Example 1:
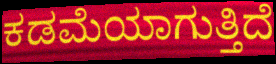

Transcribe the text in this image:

ಕಡಮೆಯಾಗುತ್ತಿದೆ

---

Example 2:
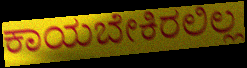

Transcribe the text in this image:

ಕಾಯಬೇಕಿರಲಿಲ್ಲ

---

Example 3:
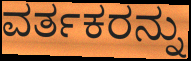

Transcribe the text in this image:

ವರ್ತಕರನ್ನು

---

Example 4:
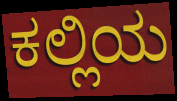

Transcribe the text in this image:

ಕಲ್ಲಿಯ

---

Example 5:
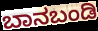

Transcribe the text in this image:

ಬಾನಬಂಡಿ